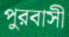
পুরবাসী